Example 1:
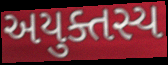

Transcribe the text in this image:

અયુક્તસ્ય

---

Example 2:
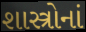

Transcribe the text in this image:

શાસ્ત્રોનાં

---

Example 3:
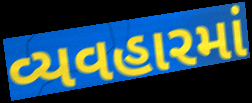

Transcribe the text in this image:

વ્યવહારમાં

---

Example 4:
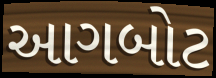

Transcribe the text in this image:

આગબોટ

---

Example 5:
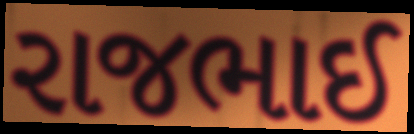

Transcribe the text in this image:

રાજભાઈ